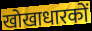
खोखाधारकों